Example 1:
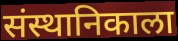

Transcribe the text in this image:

संस्थानिकाला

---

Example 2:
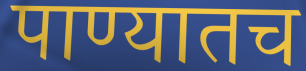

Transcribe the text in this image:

पाण्यातच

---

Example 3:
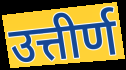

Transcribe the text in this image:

उत्तीर्ण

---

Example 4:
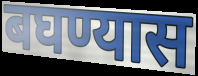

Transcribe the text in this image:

बघण्यास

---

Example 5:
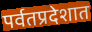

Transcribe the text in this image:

पर्वतप्रदेशात